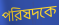
পরিষদকে